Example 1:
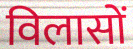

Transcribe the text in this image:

विलासों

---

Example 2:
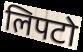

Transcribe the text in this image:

लिपटो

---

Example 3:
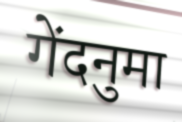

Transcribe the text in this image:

गेंदनुमा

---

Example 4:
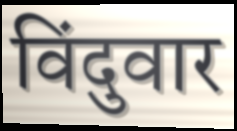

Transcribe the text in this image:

विंदुवार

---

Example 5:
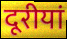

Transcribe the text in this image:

दूरीयां